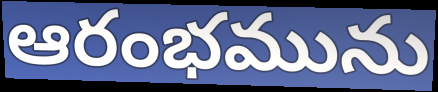
ఆరంభమును